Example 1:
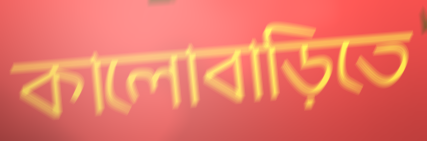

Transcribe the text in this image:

কালোবাড়িতে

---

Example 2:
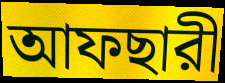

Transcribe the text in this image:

আফছারী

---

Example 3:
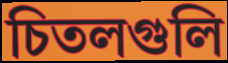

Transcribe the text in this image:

চিতলগুলি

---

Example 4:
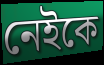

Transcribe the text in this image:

নেইকে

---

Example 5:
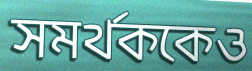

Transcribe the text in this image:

সমর্থককেও